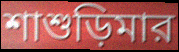
শাশুড়িমার